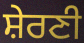
ਸ਼ੇਰਣੀ